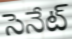
సెనేట్